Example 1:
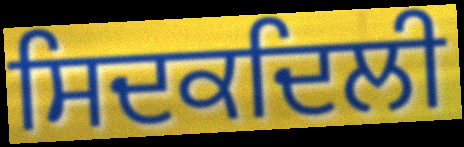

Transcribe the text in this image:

ਸਿਦਕਦਿਲੀ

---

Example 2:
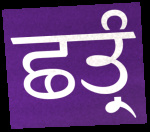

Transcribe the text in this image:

ਛਤ੍ਰੰ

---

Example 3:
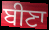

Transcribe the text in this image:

ਬੀਣਾ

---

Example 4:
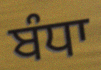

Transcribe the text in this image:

ਬੰਧਾ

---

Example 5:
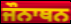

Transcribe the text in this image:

ਜੌਨਾਥਨ